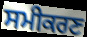
ਸਮੀਕਰਣ